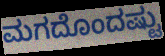
ಮಗದೊಂದಷ್ಟು